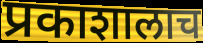
प्रकाशालाच